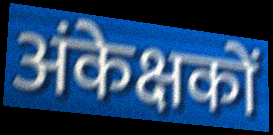
अंकेक्षकों